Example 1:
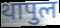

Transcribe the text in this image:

थापुल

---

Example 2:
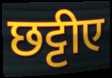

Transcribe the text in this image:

छट्टीए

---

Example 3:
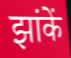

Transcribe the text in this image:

झांकें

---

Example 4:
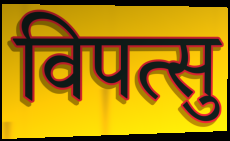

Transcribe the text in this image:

विपत्सु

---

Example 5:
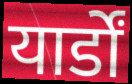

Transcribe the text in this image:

यार्डों